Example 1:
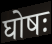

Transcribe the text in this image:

घोषः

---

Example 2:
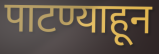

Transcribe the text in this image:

पाटण्याहून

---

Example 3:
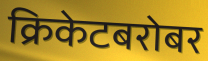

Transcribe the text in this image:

क्रिकेटबरोबर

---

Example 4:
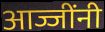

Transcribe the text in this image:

आज्जींनी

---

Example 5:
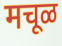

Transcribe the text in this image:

मचूळ